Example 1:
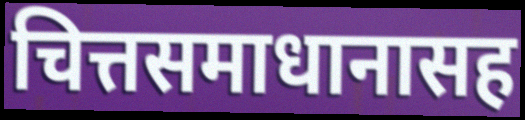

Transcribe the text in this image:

चित्तसमाधानासह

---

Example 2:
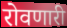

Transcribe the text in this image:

रोवणारी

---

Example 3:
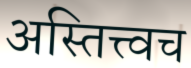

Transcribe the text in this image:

अस्तित्त्वच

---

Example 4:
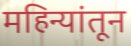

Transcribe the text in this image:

महिन्यांतून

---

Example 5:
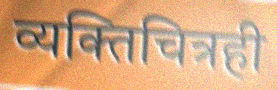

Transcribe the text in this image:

व्यक्तिचित्रही